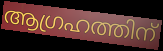
ആഗ്രഹത്തിന്